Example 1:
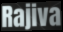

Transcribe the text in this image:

Rajiva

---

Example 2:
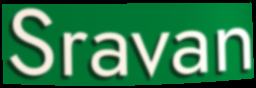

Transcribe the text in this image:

Sravan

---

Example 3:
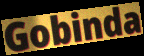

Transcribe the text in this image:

Gobinda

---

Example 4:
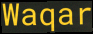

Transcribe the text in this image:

Waqar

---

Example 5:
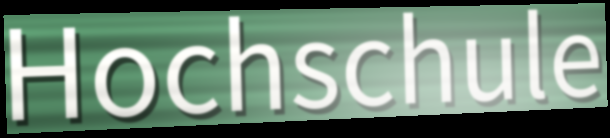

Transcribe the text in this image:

Hochschule